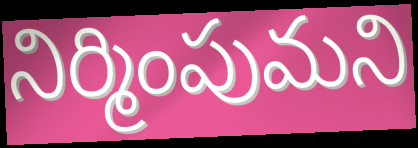
నిర్మింపుమని